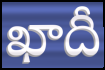
ఖాదీ